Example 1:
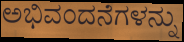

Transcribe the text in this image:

ಅಭಿವಂದನೆಗಳನ್ನು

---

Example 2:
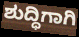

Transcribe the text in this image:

ಶುದ್ಧಿಗಾಗಿ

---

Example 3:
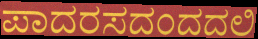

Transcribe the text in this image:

ಪಾದರಸದಂದದಲಿ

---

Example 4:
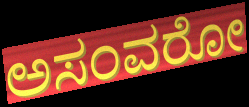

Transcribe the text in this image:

ಅಸಂವರೋ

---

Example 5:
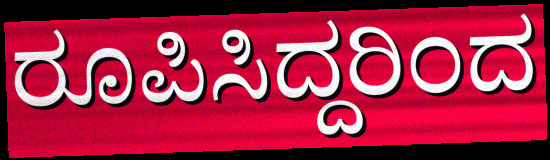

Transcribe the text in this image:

ರೂಪಿಸಿದ್ದರಿಂದ